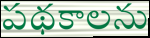
పథకాలను